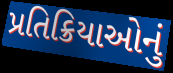
પ્રતિક્રિયાઓનું